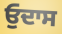
ਓੁਦਾਸ